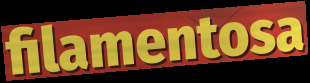
filamentosa